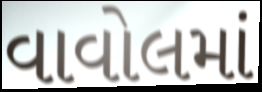
વાવોલમાં